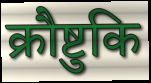
क्रौष्टुकि